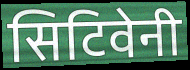
सिटिवेनी